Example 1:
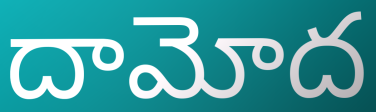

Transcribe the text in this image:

దామోద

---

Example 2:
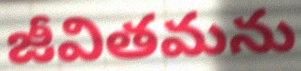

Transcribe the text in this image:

జీవితమను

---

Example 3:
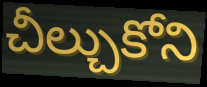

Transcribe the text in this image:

చీల్చుకోని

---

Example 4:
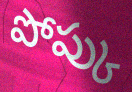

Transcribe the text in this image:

పోప్కు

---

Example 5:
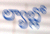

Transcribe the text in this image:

ల్యాబ్లో